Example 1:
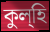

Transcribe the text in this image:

কুল্হি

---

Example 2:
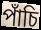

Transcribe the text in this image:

পাঁচি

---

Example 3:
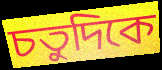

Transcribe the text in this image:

চতুদিকে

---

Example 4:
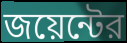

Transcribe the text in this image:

জয়েন্টের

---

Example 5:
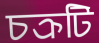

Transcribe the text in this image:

চক্রটি